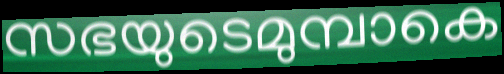
സഭയുടെമുമ്പാകെ